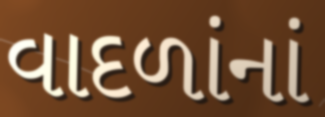
વાદળાંનાં